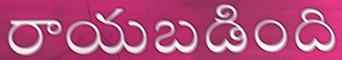
రాయబడింది